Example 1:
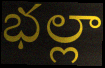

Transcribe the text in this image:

భల్లా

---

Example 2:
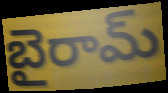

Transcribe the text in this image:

బైరామ్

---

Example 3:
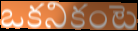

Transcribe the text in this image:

ఒకనికంటె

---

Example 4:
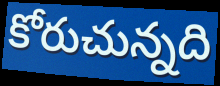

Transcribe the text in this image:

కోరుచున్నది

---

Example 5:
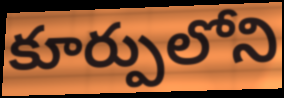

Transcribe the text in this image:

కూర్పులోని